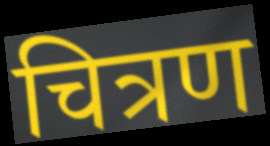
चित्रण